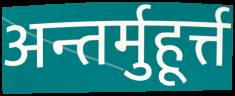
अन्तर्मुहूर्त्त